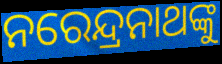
ନରେନ୍ଦ୍ରନାଥଙ୍କୁ